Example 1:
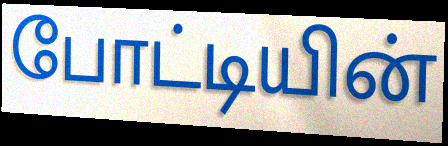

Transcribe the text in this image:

போட்டியின்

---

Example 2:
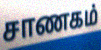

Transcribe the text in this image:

சாணகம்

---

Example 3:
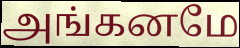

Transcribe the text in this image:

அங்கனமே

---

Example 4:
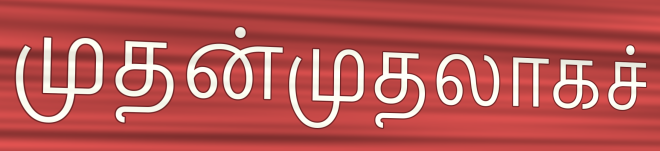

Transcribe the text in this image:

முதன்முதலாகச்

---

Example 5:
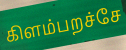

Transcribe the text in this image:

கிளம்பறச்சே